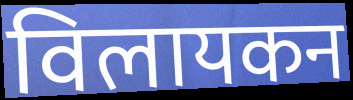
विलायकन